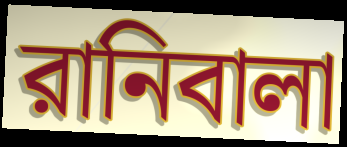
রানিবালা